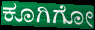
ಕೂಗಿಗೋ